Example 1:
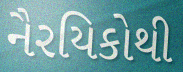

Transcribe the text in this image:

નૈરયિકોથી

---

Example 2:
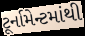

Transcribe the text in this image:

ટૂર્નામેન્ટમાંથી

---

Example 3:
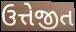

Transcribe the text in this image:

ઉત્તેજીત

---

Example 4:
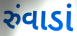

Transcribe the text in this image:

રુંવાડાં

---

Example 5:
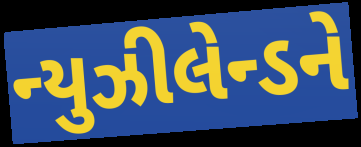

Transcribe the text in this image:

ન્યુઝીલેન્ડને